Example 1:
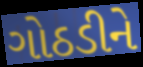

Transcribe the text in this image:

ગોઠડીને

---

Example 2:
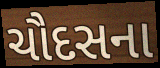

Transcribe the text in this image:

ચૌદસના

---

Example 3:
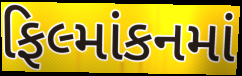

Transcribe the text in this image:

ફિલ્માંકનમાં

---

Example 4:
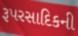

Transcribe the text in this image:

રૂપરસાદિકની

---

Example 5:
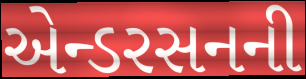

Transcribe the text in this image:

એન્ડરસનની